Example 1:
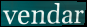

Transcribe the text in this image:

vendar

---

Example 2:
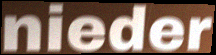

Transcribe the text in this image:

nieder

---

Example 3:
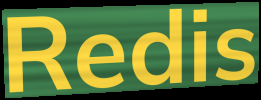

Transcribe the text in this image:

Redis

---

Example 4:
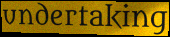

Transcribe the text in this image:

undertaking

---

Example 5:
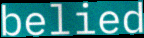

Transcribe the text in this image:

belied